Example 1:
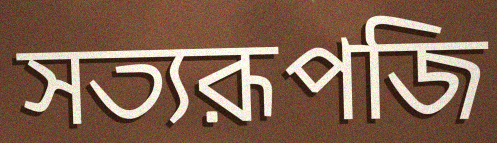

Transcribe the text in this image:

সত্যরূপজি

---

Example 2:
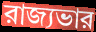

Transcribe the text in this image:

রাজ্যভার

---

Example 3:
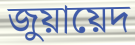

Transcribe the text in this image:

জুয়ায়েদ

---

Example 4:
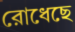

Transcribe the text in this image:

রোধেছে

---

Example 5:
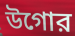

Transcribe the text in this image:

উগোর